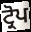
ਟ੍ਰੋਪ